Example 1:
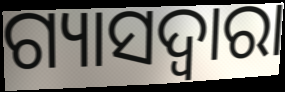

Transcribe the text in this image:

ଗ୍ୟାସଦ୍ଵାରା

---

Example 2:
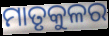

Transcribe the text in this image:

ମାତୃକୁଳର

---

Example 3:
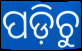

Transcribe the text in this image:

ପଡ଼ିଚୁ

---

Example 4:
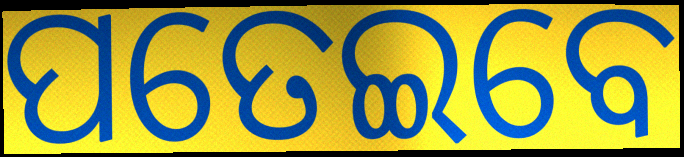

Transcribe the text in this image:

ପତେଇବେ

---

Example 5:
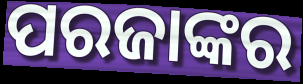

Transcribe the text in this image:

ପରଜାଙ୍କର